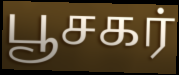
பூசகர்